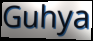
Guhya